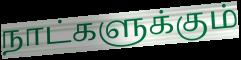
நாட்களுக்கும்